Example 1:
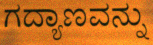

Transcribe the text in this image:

ಗದ್ಯಾಣವನ್ನು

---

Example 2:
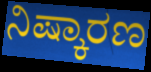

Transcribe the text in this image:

ನಿಷ್ಕಾರಣ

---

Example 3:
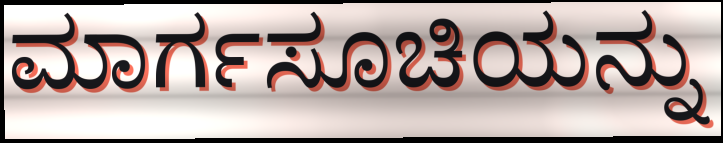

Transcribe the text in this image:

ಮಾರ್ಗಸೂಚಿಯನ್ನು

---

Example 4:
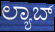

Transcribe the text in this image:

ಲ್ಯಾಬ್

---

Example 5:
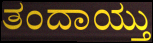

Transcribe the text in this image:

ತಂದಾಯ್ತು